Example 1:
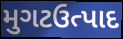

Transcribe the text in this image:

મુગટઉત્પાદ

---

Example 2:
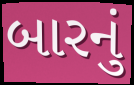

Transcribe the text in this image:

બારનું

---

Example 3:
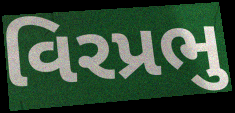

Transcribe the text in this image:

વિરપ્રભુ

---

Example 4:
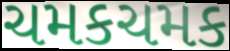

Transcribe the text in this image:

ચમકચમક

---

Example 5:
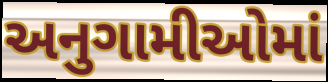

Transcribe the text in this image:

અનુગામીઓમાં